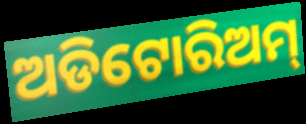
ଅଡିଟୋରିଅମ୍